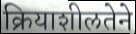
क्रियाशीलतेने